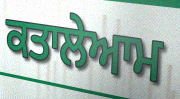
ਕਤਾਲੇਆਮ